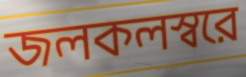
জলকলস্বরে